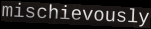
mischievously